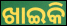
ଖାଇକି